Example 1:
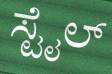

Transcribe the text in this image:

ಸ್ಟೈಲ್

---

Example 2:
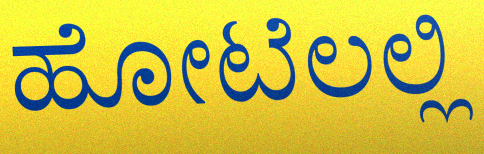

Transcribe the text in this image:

ಹೋಟೆಲಲ್ಲಿ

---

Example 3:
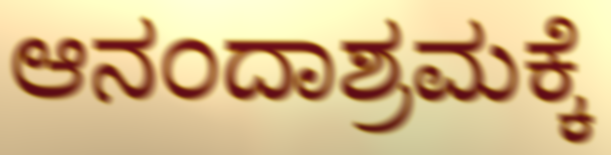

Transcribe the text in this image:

ಆನಂದಾಶ್ರಮಕ್ಕೆ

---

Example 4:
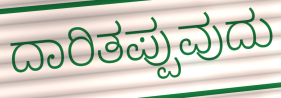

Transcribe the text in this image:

ದಾರಿತಪ್ಪುವುದು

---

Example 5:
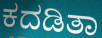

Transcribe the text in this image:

ಕದಡಿತಾ